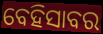
ବେହିସାବର